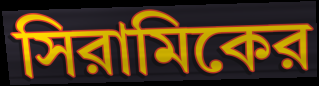
সিরামিকের